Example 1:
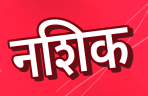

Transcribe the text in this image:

नशिक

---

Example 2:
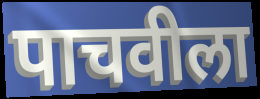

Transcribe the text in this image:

पाचवीला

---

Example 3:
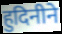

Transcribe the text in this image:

हुदिनीने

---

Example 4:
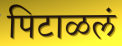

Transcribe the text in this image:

पिटाळलं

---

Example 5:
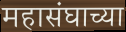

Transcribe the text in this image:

महासंघाच्या